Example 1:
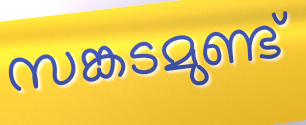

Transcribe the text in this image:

സങ്കടമുണ്ട്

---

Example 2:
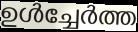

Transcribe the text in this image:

ഉൾച്ചേർത്ത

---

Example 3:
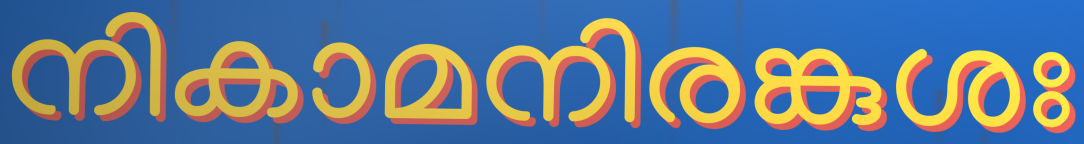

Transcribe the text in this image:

നികാമനിരങ്കുശഃ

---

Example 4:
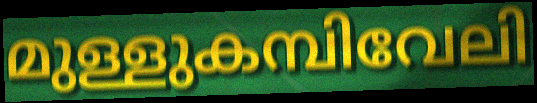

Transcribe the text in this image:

മുള്ളുകമ്പിവേലി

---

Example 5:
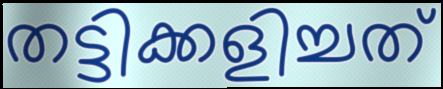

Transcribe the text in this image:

തട്ടിക്കളിച്ചത്